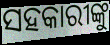
ସହକାରୀଙ୍କୁ